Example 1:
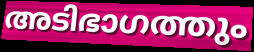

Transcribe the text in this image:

അടിഭാഗത്തും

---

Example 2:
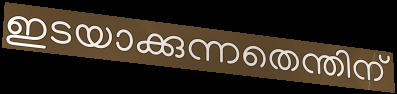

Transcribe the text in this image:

ഇടയാക്കുന്നതെന്തിന്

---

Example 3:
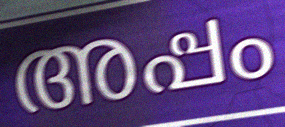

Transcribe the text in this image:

അപ്പം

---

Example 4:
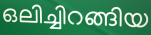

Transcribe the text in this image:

ഒലിച്ചിറങ്ങിയ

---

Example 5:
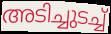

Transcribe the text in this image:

അടിച്ചുടച്ച്